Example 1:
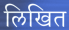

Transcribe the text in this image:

लिखित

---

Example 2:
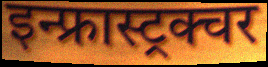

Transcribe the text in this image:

इन्फ्रास्ट्रक्‍चर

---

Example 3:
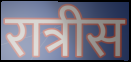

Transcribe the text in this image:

रात्रीस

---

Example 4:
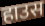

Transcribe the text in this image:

हाउस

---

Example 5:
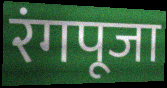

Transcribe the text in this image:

रंगपूजा